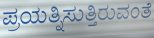
ಪ್ರಯತ್ನಿಸುತ್ತಿರುವಂತೆ